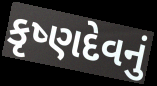
કૃષ્ણદેવનું